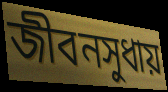
জীবনসুধায়